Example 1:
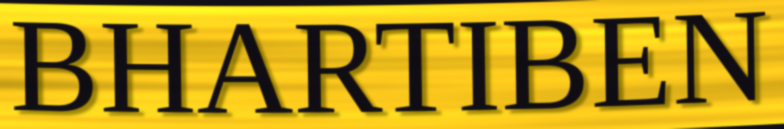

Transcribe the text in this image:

BHARTIBEN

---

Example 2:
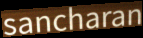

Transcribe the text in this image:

sancharan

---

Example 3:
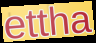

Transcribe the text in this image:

ettha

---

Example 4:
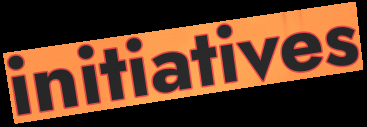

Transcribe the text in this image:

initiatives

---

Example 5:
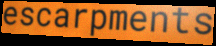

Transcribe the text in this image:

escarpments